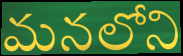
మనలోని